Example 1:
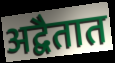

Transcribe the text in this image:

अद्वैतात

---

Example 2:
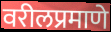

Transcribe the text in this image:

वरीलप्रमाणे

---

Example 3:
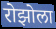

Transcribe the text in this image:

रोझोला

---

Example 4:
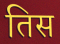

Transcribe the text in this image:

तिस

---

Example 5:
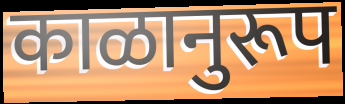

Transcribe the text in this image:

काळानुरूप